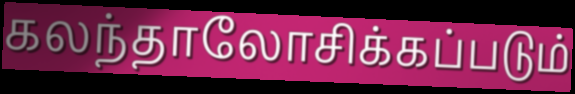
கலந்தாலோசிக்கப்படும்